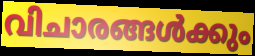
വിചാരങ്ങൾക്കും